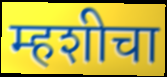
म्हशीचा